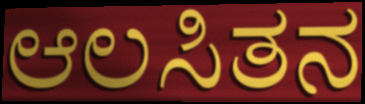
ಆಲಸಿತನ